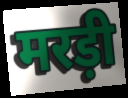
मरड़ी